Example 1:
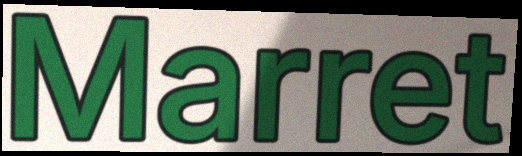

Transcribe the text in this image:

Marret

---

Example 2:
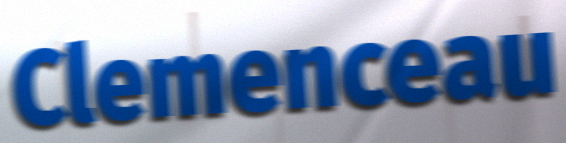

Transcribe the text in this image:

Clemenceau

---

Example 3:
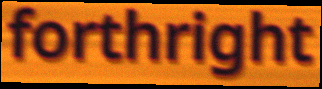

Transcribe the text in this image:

forthright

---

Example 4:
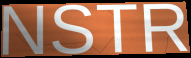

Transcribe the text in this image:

NSTR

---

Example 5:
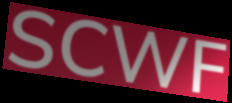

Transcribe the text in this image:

SCWF